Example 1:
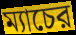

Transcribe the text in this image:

ম্যাচের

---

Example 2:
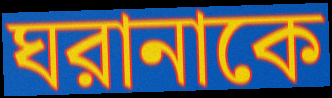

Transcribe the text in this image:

ঘরানাকে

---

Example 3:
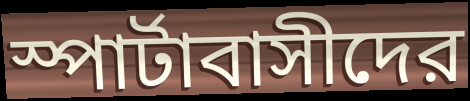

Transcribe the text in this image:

স্পার্টাবাসীদের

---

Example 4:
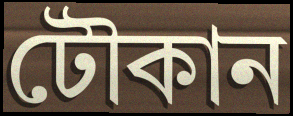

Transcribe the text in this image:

টৌকান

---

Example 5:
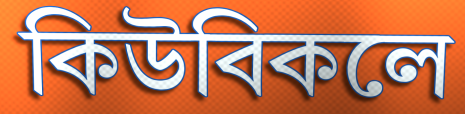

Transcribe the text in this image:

কিউবিকলে